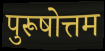
पुरूषोत्तम